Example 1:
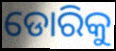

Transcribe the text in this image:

ଡୋରିକୁ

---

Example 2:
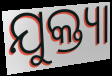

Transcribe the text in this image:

ଯୁକ୍ତ୍ୟା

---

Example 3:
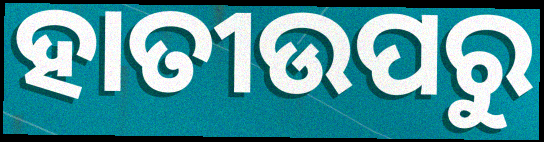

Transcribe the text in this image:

ହାତୀଉପରୁ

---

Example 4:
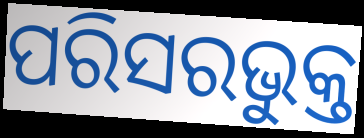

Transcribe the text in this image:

ପରିସରଭୁକ୍ତ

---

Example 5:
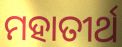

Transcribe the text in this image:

ମହାତୀର୍ଥ